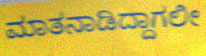
ಮಾತನಾಡಿದ್ದಾಗಲೀ